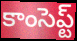
కాంసెప్ట్